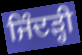
ਜਿੰਦੜ੍ਹੀ